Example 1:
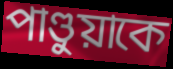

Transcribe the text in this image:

পাণ্ডুয়াকে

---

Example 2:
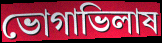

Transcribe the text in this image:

ভোগাভিলাষ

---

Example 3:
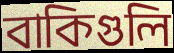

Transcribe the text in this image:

বাকিগুলি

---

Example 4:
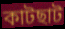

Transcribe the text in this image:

কাটছাট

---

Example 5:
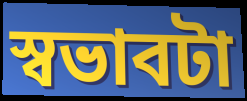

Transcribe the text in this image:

স্বভাবটা